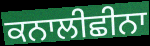
ਕਨਾਲੀਛੀਨਾ